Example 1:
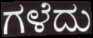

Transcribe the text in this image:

ಗಳೆದು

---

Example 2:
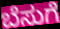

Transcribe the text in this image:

ಬೆಸುಗೆ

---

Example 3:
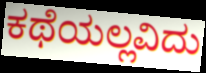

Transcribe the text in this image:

ಕಥೆಯಲ್ಲವಿದು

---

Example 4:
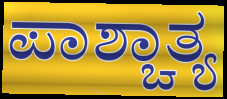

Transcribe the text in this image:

ಪಾಶ್ಚಾತ್ಯ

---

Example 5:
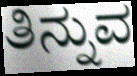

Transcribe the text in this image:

ತಿನ್ನುವ